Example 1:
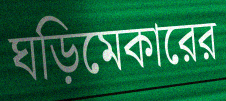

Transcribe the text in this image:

ঘড়িমেকারের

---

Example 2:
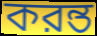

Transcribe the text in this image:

করন্ত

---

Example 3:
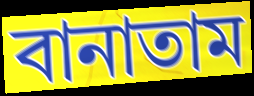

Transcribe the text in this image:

বানাতাম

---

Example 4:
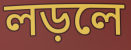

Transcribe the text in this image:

লড়লে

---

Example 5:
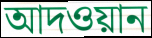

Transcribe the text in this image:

আদওয়ান